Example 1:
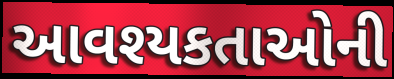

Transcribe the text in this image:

આવશ્યકતાઓની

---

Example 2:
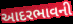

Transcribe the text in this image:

આદરભાવની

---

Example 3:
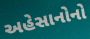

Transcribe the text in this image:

અહેસાનોનો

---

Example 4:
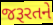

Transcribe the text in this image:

જરૂરતને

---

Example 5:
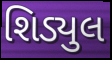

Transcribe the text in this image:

શિડ્યુલ